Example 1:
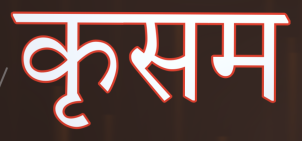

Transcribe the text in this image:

कृसम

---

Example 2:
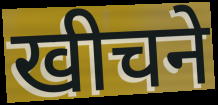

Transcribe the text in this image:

खीचने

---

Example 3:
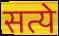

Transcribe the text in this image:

सत्ये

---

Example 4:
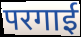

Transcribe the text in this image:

परगाई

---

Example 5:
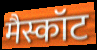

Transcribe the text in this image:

मैस्कॉट